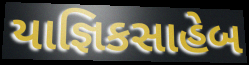
યાજ્ઞિકસાહેબ